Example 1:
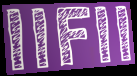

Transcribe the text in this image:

IIFII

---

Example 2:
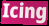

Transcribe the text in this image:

Icing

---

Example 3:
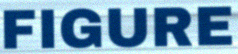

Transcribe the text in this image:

FIGURE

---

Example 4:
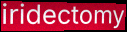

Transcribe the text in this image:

iridectomy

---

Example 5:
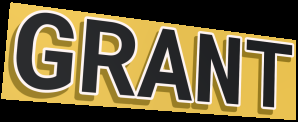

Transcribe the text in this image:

GRANT